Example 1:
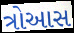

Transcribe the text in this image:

ત્રોઆસ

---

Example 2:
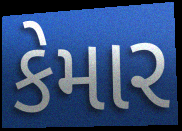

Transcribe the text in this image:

કેમાર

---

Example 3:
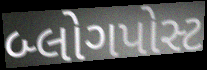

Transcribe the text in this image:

બ્લોગપોસ્ટ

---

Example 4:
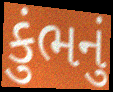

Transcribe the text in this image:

કુંભનું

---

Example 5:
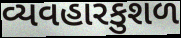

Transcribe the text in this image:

વ્યવહારકુશળ